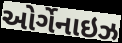
ઓર્ગેનાઇઝ